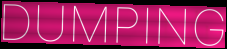
DUMPING